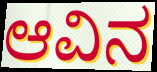
ಆವಿನ